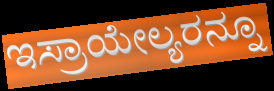
ಇಸ್ರಾಯೇಲ್ಯರನ್ನೂ